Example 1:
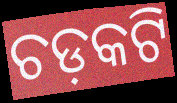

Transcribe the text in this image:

ଚଡ଼କଟି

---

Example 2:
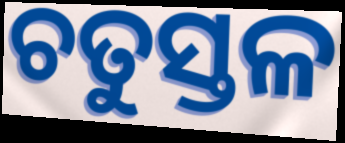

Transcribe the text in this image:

ଚତୁସ୍ତଳ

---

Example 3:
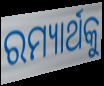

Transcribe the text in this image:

ରମ୍ୟାର୍ଥକୁ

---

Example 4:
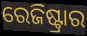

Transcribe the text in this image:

ରେଜିଷ୍ଟ୍ରାର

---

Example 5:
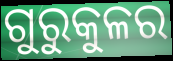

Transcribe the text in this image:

ଗୁରୁକୁଳର